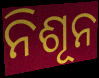
ନିଶୂନ